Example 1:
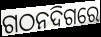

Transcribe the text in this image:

ଗଠନଦିଗରେ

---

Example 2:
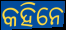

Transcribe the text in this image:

କହିନେ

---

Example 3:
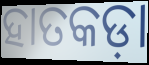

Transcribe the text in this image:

ହାତକଡ଼ା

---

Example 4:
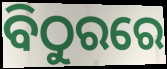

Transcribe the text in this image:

ବିଠୁରରେ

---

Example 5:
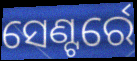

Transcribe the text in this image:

ସେଣ୍ଟର୍ରେ